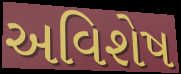
અવિશેષ